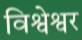
विश्वेश्वर